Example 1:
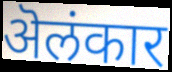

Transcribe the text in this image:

ऄलंकार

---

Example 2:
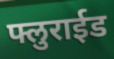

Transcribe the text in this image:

फ्लुराईड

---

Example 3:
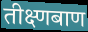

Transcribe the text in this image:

तीक्ष्णबाण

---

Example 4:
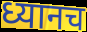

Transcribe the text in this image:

ध्यानच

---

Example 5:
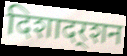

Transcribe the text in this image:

दिशादर्शन